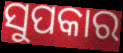
ସୁପକାର